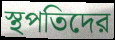
স্থপতিদের